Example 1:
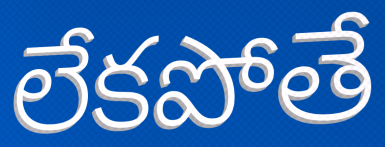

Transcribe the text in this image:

లేకపోతే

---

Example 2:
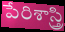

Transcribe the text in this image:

పేరిశాస్త్రి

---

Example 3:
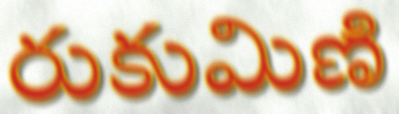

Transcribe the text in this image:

రుకుమిణి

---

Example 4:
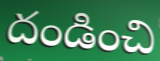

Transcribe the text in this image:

దండించి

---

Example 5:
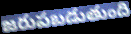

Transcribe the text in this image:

జరుపబడుతుంది